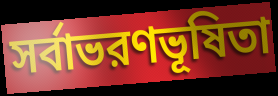
সর্বাভরণভূষিতা